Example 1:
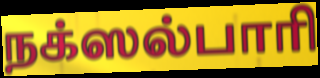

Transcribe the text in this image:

நக்ஸல்பாரி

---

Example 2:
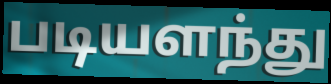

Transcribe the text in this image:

படியளந்து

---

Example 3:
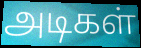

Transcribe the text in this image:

அடிகள்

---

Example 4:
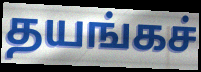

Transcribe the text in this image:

தயங்கச்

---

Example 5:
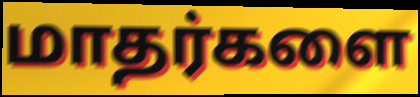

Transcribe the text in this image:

மாதர்களை